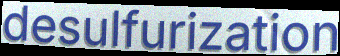
desulfurization